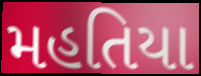
મહતિયા